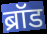
ब्रॉड